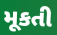
મૂકતી